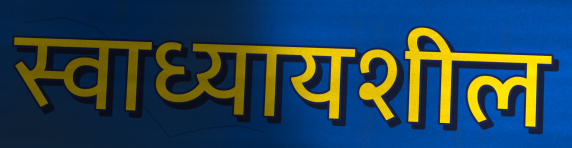
स्वाध्यायशील